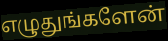
எழுதுங்களேன்